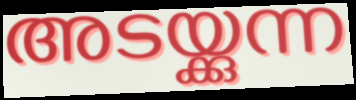
അടയ്ക്കുന്ന